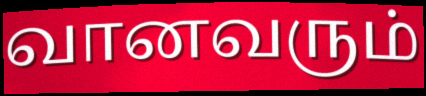
வானவரும்